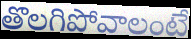
తొలగిపోవాలంటే